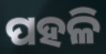
ପହଳି